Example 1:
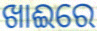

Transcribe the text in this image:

ଖାଈରେ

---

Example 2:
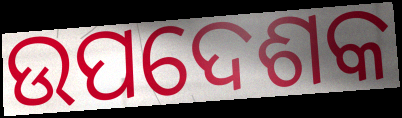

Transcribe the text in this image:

ଉପଦେଶକ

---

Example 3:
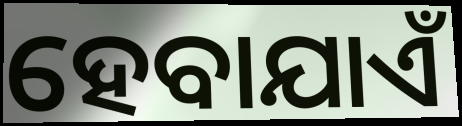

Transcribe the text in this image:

ହେବାଯାଏଁ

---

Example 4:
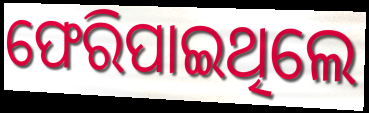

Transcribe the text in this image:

ଫେରିପାଇଥିଲେ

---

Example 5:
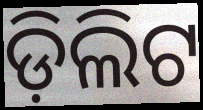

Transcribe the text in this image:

ଡ଼ିଲିଟ